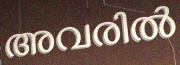
അവരിൽ